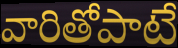
వారితోపాటే